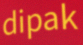
dipak